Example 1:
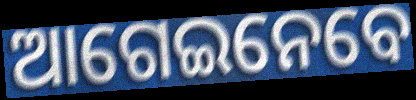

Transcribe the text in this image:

ଆଗେଇନେବେ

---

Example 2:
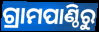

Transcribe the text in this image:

ଗ୍ରାମପାଣ୍ଠିରୁ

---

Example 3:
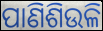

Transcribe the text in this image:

ପାଣିଶିଉଳି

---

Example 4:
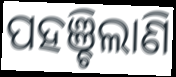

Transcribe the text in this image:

ପହଞ୍ଚିଲାଣି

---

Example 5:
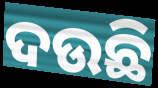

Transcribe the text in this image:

ଦଉଛି